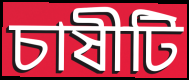
চাষীটি